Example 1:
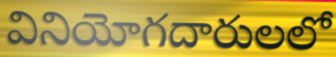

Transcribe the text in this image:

వినియోగదారులలో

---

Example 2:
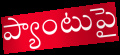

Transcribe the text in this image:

ప్యాంటుపై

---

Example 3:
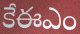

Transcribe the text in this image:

కేఈఎం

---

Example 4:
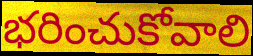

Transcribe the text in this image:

భరించుకోవాలి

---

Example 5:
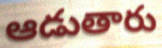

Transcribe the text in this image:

ఆడుతారు